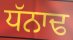
ਧੱਨਾਢ